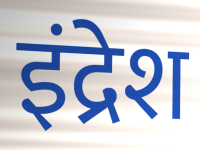
इंद्रेश